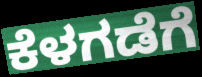
ಕೆಳಗಡೆಗೆ